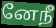
னேநீ